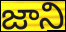
జాని